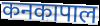
कनकापाल